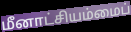
மீனாட்சியம்மைப்